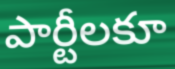
పార్టీలకూ